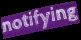
notifying